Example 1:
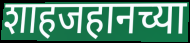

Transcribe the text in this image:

शाहजहानच्या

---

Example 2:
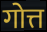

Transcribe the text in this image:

गोत्त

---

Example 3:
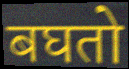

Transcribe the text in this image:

बघतो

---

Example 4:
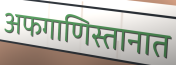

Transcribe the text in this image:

अफगाणिस्तानात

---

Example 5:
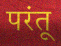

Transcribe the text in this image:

परंतू